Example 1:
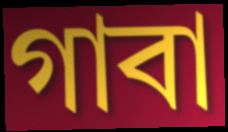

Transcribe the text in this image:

গাবা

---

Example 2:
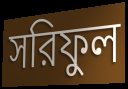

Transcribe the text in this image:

সরিফুল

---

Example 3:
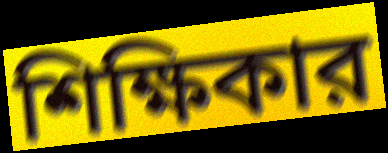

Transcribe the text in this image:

শিক্ষিকার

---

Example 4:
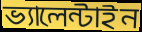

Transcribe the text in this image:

ভ্যালেন্টাইন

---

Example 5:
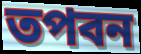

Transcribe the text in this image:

তপবন